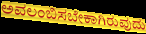
ಅವಲಂಬಿಸಬೇಕಾಗಿರುವುದು